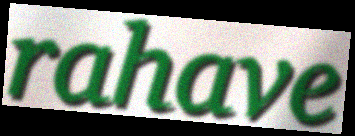
rahave